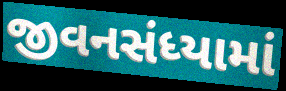
જીવનસંધ્યામાં